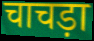
चाचड़ा